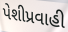
પેશીપ્રવાહી